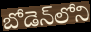
బోడెన్‌లోని